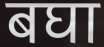
बघा